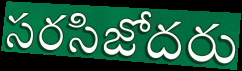
సరసిజోదరు